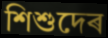
শিশুদেৰ